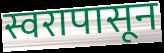
स्वरापासून